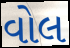
વોલ